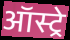
ऑस्ट्रे